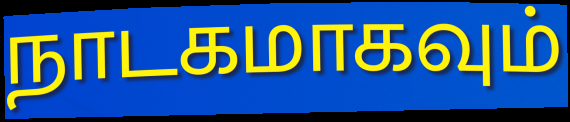
நாடகமாகவும்